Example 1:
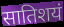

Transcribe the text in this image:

सातिशयं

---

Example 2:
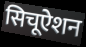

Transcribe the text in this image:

सिचूऐशन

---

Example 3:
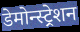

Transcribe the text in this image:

डेमोन्स्ट्रेशन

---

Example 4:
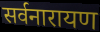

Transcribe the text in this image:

सर्वनारायण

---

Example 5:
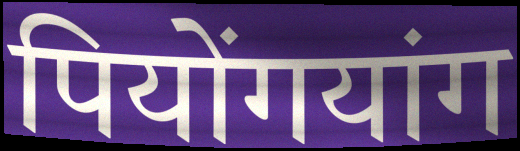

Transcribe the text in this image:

पियोंगयांग